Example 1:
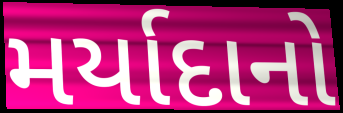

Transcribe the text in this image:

મર્યાદાનો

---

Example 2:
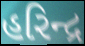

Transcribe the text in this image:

હરિન્દ્ર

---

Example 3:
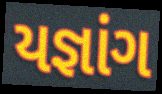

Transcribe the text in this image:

યજ્ઞાંગ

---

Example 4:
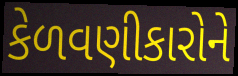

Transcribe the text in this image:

કેળવણીકારોને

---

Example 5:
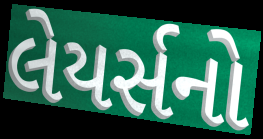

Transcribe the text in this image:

લેયર્સનો